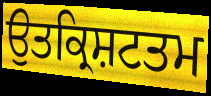
ਉਤਕ੍ਰਿਸ਼ਟਤਮ